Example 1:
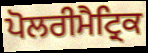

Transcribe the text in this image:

ਪੋਲਰੀਮੈਟ੍ਰਿਕ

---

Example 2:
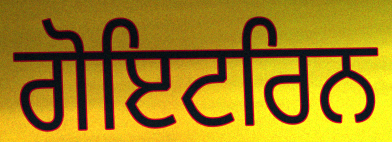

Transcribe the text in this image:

ਗੋਇਟਰਿਨ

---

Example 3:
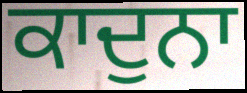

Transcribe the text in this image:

ਕਾਦੁਨਾ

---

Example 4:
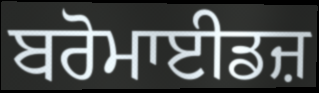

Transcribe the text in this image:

ਬਰੋਮਾਈਡਜ਼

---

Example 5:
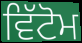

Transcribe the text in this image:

ਵਿੱਟੋਮ